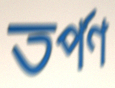
তর্পণ